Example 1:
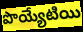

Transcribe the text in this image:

పొయ్యేటియి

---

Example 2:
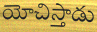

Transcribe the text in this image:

యోచిస్తాడు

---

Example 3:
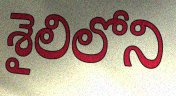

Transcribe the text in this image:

శైలిలోని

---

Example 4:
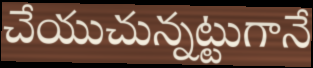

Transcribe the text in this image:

చేయుచున్నట్టుగానే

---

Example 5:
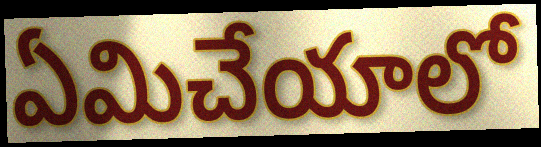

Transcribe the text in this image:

ఏమిచేయాలో